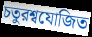
চতুরশ্বযোজিত